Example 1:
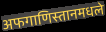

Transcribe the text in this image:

अफगाणिस्तानमधले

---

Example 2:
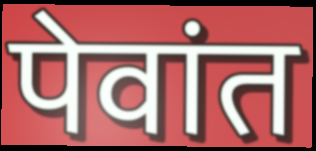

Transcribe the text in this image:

पेवांत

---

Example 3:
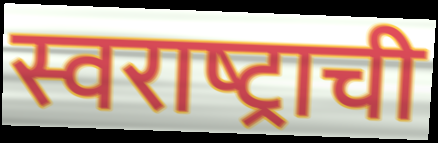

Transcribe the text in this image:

स्वराष्ट्राची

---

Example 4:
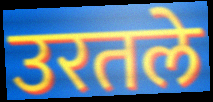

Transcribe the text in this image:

उरतले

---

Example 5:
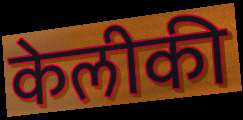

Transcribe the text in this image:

केलीकी